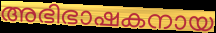
അഭിഭാഷകനായ